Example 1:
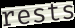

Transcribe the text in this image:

rests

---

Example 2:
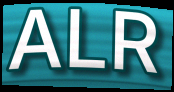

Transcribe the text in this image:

ALR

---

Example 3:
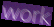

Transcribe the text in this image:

work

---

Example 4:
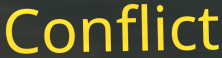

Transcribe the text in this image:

Conflict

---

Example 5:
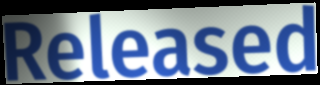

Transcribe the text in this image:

Released